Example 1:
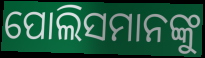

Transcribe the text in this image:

ପୋଲିସମାନଙ୍କୁ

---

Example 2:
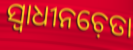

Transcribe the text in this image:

ସ୍ୱାଧୀନଚ଼େତା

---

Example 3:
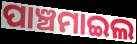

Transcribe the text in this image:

ପାଞ୍ଚମାଇଲ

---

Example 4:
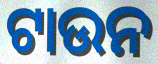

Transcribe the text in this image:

ଟାଉନ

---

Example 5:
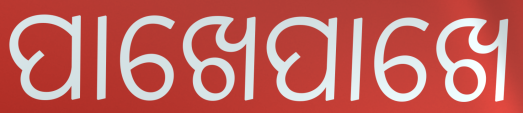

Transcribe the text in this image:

ପାଖେପାଖେ